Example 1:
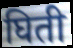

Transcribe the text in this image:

घिती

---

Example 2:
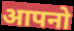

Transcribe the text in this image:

आपनो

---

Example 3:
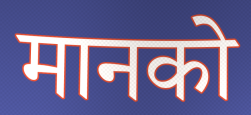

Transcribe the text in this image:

मानको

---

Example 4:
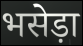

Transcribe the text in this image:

भसेड़ा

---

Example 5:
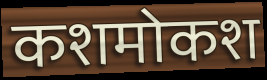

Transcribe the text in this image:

कशमोकश